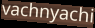
vachnyachi